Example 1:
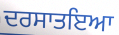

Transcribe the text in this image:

ਦਰਸਾਤਇਆ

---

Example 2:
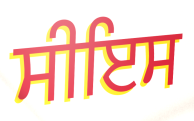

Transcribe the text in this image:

ਸੀਇਸ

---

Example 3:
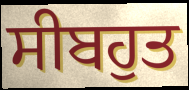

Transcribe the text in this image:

ਸੀਬਹੁਤ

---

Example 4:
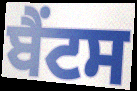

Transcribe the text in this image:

ਬੈਂਟਸ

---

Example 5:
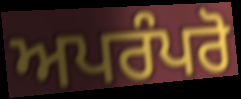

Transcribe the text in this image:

ਅਪਰੰਪਰੋ